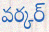
వర్కర్